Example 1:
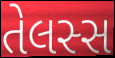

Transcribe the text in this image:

તેલસ્સ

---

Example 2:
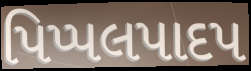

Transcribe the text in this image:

પિપ્પલપાદપ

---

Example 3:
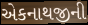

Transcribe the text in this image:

એકનાથજીની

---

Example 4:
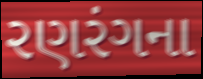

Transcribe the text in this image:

રણરંગના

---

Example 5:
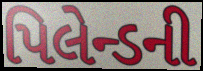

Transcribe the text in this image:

પિલેન્ડની